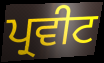
ਪ੍ਰਵੀਟ